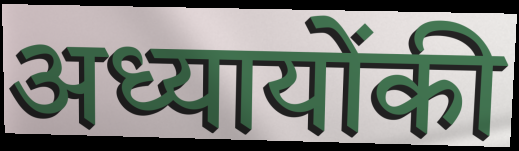
अध्यायोंकी